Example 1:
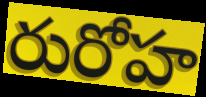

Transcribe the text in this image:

రురోహ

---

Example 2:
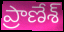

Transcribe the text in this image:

ప్రాణేశ్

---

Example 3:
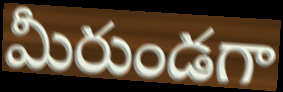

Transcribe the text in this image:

మీరుండగా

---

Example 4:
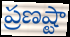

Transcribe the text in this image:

ప్రణష్టా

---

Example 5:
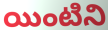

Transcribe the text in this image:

యింటిని